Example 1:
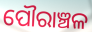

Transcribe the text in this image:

ପୌରାଞ୍ଚଳ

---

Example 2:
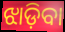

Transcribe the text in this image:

ଝାଡ଼ିବା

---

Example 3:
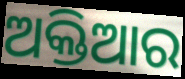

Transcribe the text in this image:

ଅକ୍ତିଆର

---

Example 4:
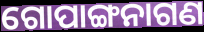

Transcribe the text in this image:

ଗୋପାଙ୍ଗନାଗଣ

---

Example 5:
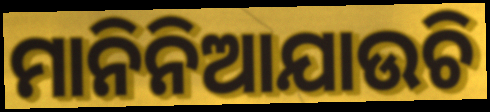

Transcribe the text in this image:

ମାନିନିଆଯାଉଚି